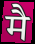
मै